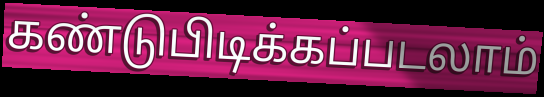
கண்டுபிடிக்கப்படலாம்